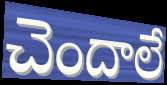
చెందాలే